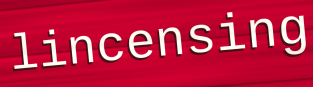
lincensing